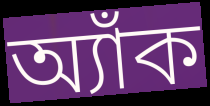
অ্যাঁক